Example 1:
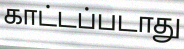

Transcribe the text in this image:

காட்டப்படாது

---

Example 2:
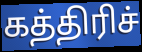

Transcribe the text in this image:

கத்திரிச்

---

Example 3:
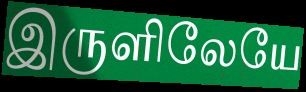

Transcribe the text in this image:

இருளிலேயே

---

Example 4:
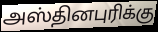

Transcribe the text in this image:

அஸ்தினபுரிக்கு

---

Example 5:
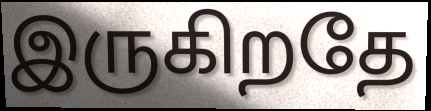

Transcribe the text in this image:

இருகிறதே